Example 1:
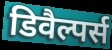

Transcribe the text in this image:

डिवैल्पर्स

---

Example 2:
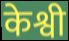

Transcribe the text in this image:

केश्वी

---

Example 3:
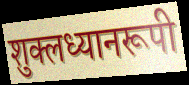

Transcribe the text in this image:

शुक्लध्यानरूपी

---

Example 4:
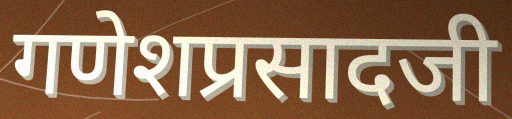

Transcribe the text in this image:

गणेशप्रसादजी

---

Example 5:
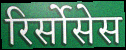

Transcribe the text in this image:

रिर्सोसेस